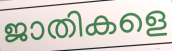
ജാതികളെ